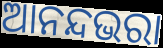
ଆନନ୍ଦଭରା